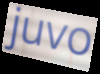
juvo